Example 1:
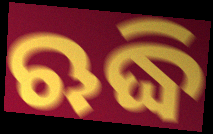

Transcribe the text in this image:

ଋଦ୍ଧି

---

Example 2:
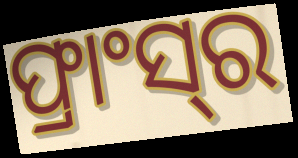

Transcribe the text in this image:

ଫ୍ରାଂସ୍‍ର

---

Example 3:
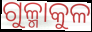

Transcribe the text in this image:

ଗୁଳ୍ମାକୁଳ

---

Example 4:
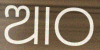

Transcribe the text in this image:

ଆଠ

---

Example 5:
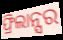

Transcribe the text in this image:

ଫ୍ରିଲାନ୍ସର